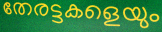
തേരട്ടകളെയും